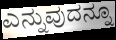
ಎನ್ನುವುದನ್ನೂ